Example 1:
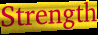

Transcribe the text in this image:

Strength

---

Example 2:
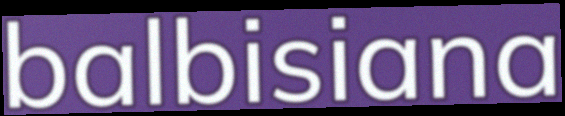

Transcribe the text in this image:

balbisiana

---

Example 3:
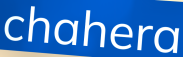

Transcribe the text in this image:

chahera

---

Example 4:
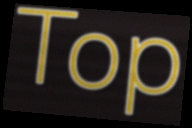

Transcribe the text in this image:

Top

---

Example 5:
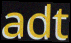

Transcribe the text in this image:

adt